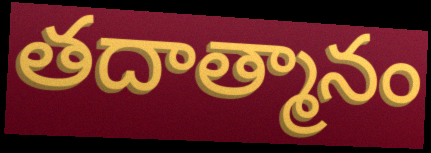
తదాత్మానం